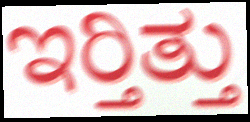
ಇರ್‍ತಿತ್ತು